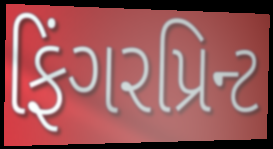
ફિંગરપ્રિન્ટ